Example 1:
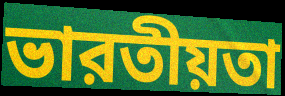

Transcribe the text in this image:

ভারতীয়তা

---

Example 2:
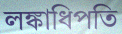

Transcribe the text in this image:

লঙ্কাধিপতি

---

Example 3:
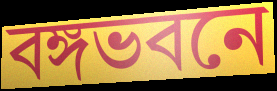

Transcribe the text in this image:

বঙ্গভবনে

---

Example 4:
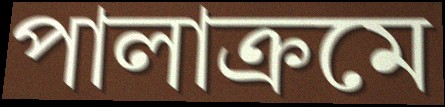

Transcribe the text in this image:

পালাক্রমে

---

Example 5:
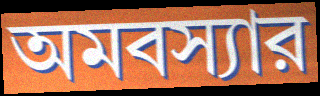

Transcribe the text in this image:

অমবস্যার